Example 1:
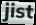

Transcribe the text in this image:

jist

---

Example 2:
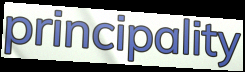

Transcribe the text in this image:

principality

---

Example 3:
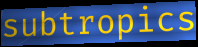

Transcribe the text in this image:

subtropics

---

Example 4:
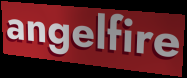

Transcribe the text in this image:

angelfire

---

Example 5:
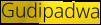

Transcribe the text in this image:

Gudipadwa